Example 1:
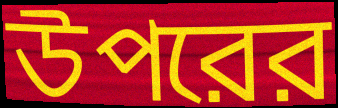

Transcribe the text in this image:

উপরের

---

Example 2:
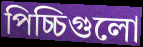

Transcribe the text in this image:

পিচ্চিগুলো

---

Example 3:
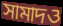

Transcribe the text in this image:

সামাদও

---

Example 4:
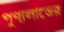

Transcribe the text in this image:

পুণ্যলাভের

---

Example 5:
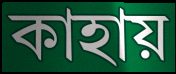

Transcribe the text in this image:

কাহায়